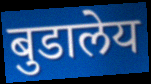
बुडालेय